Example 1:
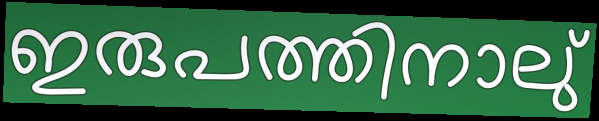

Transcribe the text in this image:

ഇരുപത്തിനാലു്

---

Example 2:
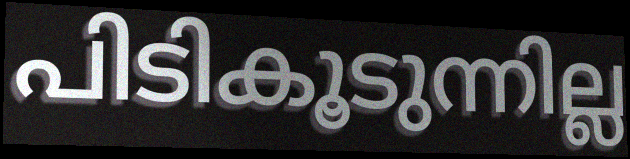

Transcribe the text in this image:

പിടികൂടുന്നില്ല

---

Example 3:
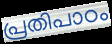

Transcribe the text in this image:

പ്രതിപാഠം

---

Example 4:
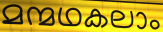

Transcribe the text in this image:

മന്മഥകലാം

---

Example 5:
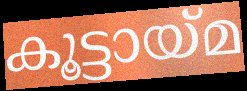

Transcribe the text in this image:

കൂട്ടായ്മ